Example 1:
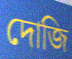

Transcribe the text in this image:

দোজি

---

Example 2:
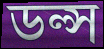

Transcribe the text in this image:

ডল্স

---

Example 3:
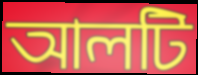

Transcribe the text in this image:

আলটি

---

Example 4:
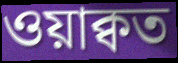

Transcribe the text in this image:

ওয়াক্বত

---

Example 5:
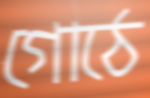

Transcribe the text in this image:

গোঠে